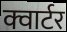
क्‍वार्टर